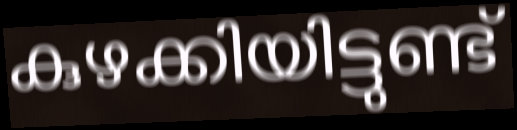
കുഴക്കിയിട്ടുണ്ട്